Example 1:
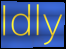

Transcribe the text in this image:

Idly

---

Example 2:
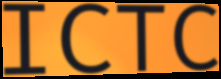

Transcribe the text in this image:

ICTC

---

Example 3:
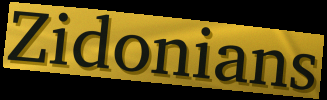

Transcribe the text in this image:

Zidonians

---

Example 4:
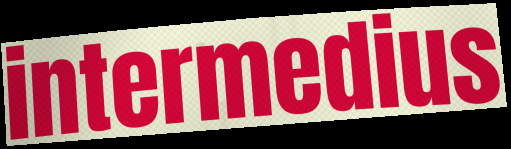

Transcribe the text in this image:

intermedius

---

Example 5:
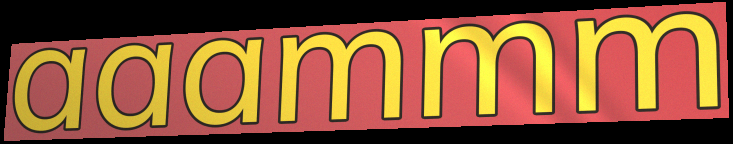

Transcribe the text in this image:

aaammm